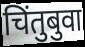
चिंतुबुवा